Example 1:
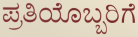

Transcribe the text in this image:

ಪ್ರತಿಯೊಬ್ಬರಿಗೆ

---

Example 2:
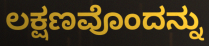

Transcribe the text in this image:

ಲಕ್ಷಣವೊಂದನ್ನು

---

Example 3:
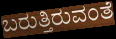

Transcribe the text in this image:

ಬರುತ್ತಿರುವಂತೆ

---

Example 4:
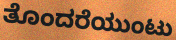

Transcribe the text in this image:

ತೊಂದರೆಯುಂಟು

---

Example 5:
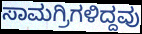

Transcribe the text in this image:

ಸಾಮಗ್ರಿಗಳಿದ್ದವು